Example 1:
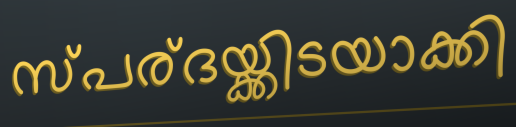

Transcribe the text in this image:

സ്പര്ദയ്ക്കിടയാക്കി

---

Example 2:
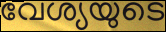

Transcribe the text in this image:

വേശ്യയുടെ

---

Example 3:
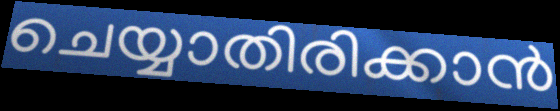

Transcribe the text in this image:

ചെയ്യാതിരിക്കാൻ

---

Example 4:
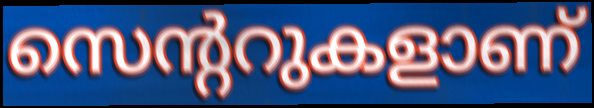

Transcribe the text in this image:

സെന്ററുകളാണ്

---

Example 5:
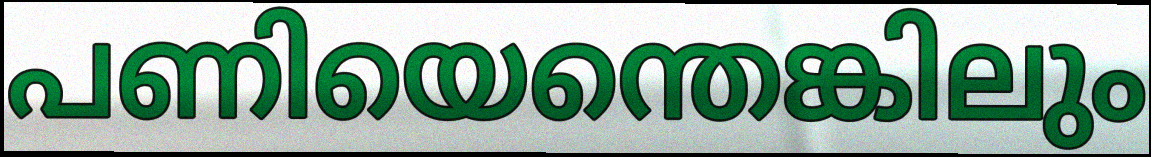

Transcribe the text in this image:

പണിയെന്തെങ്കിലും